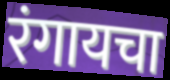
रंगायचा